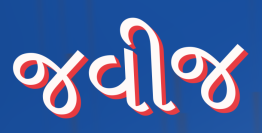
જવીજ